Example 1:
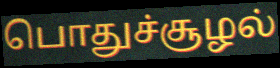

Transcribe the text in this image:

பொதுச்சூழல்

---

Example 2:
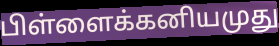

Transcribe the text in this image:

பிள்ளைக்கனியமுது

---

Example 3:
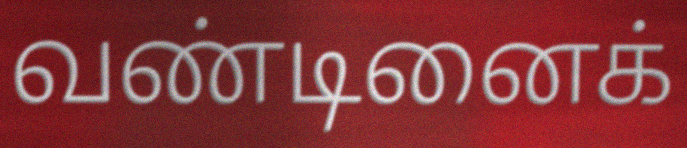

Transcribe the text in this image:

வண்டினைக்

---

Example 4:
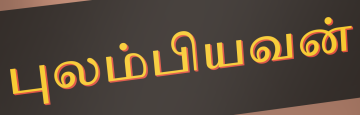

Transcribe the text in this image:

புலம்பியவன்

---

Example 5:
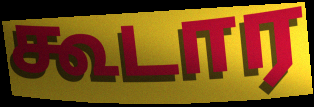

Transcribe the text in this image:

கூடார